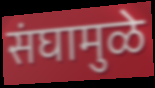
संघामुळे